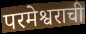
परमेश्वराची